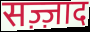
सज़्ज़ाद